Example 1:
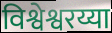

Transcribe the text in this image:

विश्वेश्वरय्या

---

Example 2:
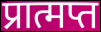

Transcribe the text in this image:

प्रात्मप्त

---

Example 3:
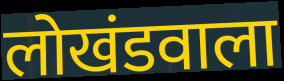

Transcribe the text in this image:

लोखंडवाला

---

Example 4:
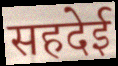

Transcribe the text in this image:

सहदेई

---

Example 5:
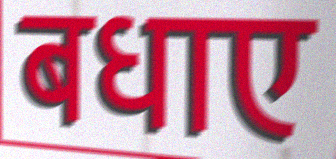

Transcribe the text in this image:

बधाए